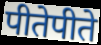
पीतेपीते